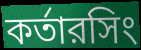
কর্তারসিং